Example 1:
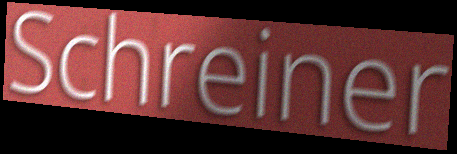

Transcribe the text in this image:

Schreiner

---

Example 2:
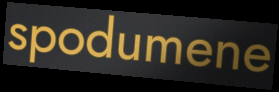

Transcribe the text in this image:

spodumene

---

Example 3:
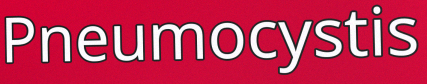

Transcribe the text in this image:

Pneumocystis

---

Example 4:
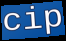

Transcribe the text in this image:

cip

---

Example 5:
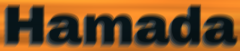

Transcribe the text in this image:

Hamada